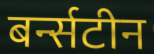
बर्न्सटीन